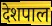
देशपाल